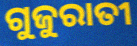
ଗୁଜୁରାତୀ